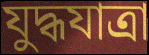
যুদ্ধযাত্রা